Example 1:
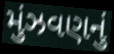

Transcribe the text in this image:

મુંઝવણનું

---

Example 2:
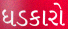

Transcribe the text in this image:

ધડકારો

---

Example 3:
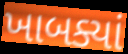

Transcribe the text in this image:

ખાબક્યાં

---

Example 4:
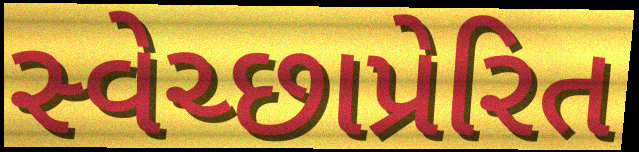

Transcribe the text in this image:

સ્વેચ્છાપ્રેરિત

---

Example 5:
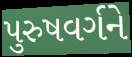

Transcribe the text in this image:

પુરુષવર્ગને